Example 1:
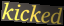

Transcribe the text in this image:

kicked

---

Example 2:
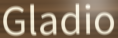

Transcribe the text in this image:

Gladio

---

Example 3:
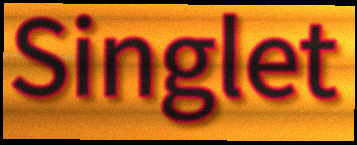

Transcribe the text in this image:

Singlet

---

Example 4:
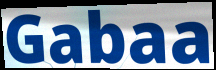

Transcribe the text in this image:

Gabaa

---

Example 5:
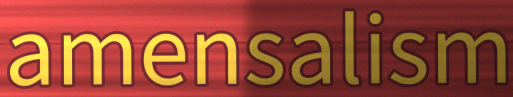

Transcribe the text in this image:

amensalism